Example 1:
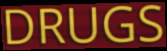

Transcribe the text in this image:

DRUGS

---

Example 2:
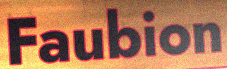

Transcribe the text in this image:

Faubion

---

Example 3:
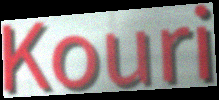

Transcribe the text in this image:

Kouri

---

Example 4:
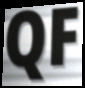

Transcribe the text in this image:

QF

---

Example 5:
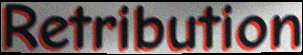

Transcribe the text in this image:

Retribution